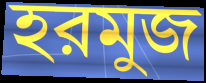
হরমুজ